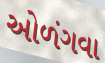
ઓળંગવા